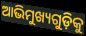
ଆଭିମୁଖ୍ୟଗୁଡ଼ିକୁ